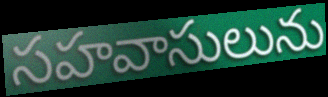
సహవాసులును